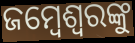
ଜମ୍ବେଶ୍ୱରଙ୍କୁ